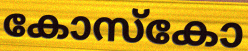
കോസ്കോ